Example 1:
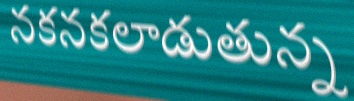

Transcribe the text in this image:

నకనకలాడుతున్న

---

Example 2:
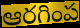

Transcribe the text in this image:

ఆరగింప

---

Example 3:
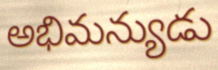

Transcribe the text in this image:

అభిమన్యుడు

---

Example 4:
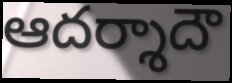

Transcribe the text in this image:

ఆదర్శాదౌ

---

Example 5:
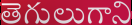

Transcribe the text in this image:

తెగులుగాని